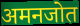
अमनजोत